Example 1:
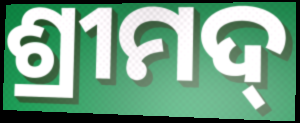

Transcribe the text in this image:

ଶ୍ରୀମଦ୍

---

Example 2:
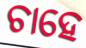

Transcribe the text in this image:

ଚାହେ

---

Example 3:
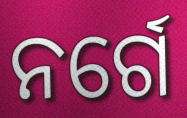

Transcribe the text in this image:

ନର୍ଗେ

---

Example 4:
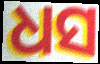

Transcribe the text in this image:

ଧସ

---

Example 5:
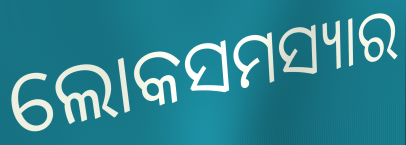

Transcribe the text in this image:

ଲୋକସମସ୍ୟାର